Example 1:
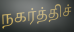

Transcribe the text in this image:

நகர்த்திச்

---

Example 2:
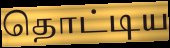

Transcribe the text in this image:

தொட்டிய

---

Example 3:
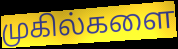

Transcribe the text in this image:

முகில்களை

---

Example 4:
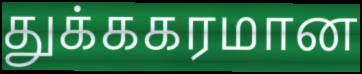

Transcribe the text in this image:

துக்ககரமான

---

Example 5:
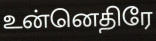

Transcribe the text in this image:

உன்னெதிரே